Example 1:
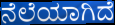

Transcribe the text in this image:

ನೆಲೆಯಾಗಿದೆ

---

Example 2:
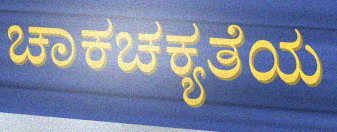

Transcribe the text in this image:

ಚಾಕಚಕ್ಯತೆಯ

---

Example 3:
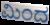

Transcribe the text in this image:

ಮಿಂದ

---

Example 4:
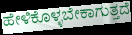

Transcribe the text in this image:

ಹೇಳಿಕೊಳ್ಳಬೇಕಾಗುತ್ತದೆ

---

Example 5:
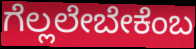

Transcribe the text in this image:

ಗೆಲ್ಲಲೇಬೇಕೆಂಬ